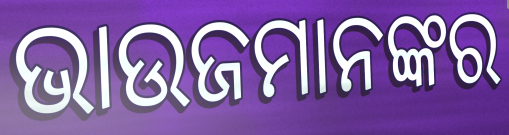
ଭାଉଜମାନଙ୍କର